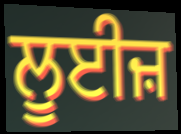
ਲੂਈਜ਼